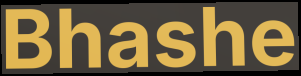
Bhashe